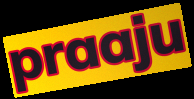
praaju